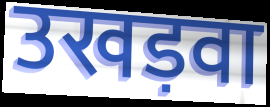
उखड़वा